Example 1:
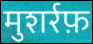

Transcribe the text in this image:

मुशर्रफ़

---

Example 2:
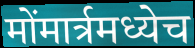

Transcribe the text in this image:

मोंमार्त्रमध्येच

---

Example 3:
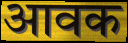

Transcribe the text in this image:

आवक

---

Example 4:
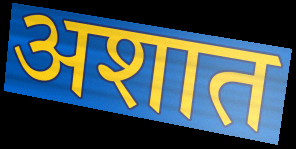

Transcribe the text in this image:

अशात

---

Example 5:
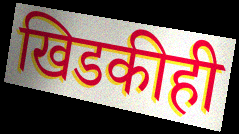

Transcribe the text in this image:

खिडकीही